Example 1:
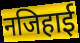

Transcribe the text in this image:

नजिहाई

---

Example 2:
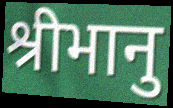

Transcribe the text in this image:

श्रीभानु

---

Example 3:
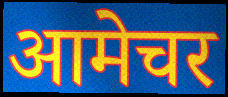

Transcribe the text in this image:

आमेचर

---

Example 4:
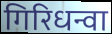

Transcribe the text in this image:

गिरिधन्वा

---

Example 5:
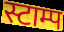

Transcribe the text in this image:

स्टाम्प